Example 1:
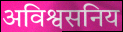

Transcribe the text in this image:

अविश्वसनिय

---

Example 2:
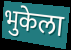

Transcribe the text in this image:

भुकेला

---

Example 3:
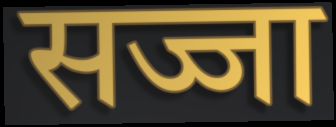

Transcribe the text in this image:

सज्जा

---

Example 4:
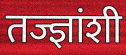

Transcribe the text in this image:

तज्ज्ञांशी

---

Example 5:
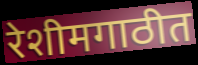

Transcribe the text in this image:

रेशीमगाठीत